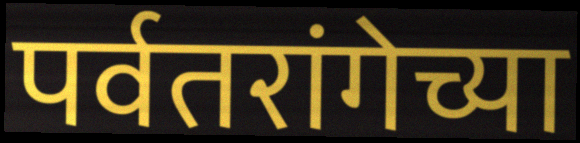
पर्वतरांगेच्या